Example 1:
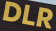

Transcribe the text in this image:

DLR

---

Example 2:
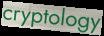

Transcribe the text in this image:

cryptology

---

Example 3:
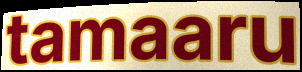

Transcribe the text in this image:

tamaaru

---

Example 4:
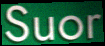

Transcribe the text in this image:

Suor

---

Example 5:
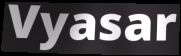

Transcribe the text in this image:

Vyasar